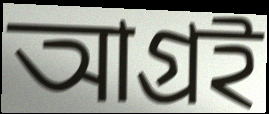
আগ্রই